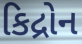
કિદ્રોન